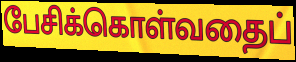
பேசிக்கொள்வதைப்